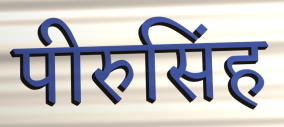
पीरुसिंह